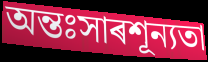
অন্তঃসাৰশূন্যতা